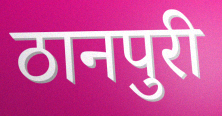
ठानपुरी